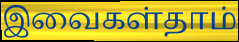
இவைகள்தாம்